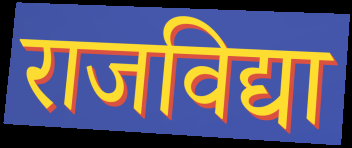
राजविद्या